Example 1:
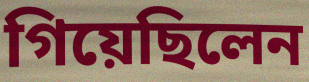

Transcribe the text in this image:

গিয়েছিলেন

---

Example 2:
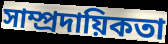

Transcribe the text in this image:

সাম্প্রদায়িকতা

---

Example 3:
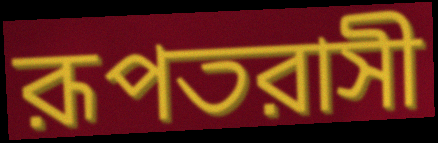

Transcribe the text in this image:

রূপতরাসী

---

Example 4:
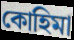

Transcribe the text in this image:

কোহিমা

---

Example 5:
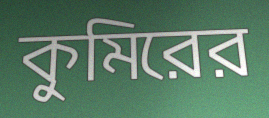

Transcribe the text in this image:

কুমিরের